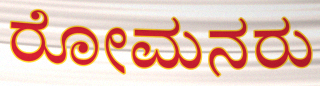
ರೋಮನರು